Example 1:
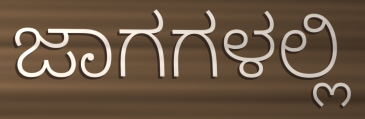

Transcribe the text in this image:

ಜಾಗಗಳಲ್ಲಿ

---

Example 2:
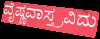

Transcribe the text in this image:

ವೈಷ್ಣವಾಸ್ತ್ರವಿದು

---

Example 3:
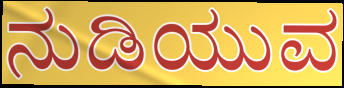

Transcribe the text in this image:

ನುಡಿಯುವ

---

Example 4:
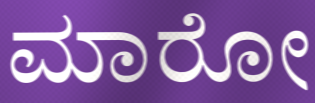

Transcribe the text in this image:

ಮಾರೋ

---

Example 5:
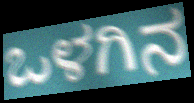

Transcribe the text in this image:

ಒಳಗಿನ